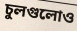
চুলগুলোও